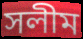
সলীম